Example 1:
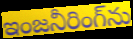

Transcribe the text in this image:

ఇంజనీరింగ్‌ను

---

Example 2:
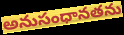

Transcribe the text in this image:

అనుసంధానతను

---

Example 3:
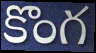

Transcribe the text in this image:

కొంగ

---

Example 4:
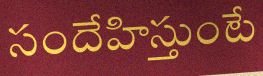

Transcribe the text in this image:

సందేహిస్తుంటే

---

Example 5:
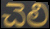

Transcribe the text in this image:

చెలి